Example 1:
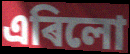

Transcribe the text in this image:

এৰিলো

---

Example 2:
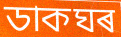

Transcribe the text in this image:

ডাকঘৰ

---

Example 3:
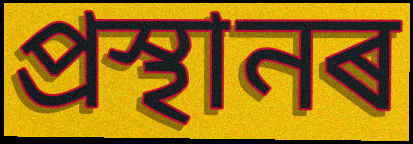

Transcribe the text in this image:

প্ৰস্থানৰ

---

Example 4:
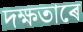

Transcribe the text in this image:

দক্ষতাৰে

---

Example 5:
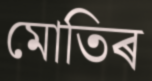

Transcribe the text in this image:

মোতিৰ